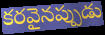
కరవైనప్పుడు